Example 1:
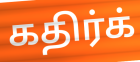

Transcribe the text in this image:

கதிர்க்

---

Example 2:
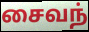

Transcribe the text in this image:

சைவந்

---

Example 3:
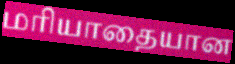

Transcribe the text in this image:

மரியாதையான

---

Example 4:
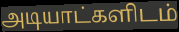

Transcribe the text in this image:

அடியாட்களிடம்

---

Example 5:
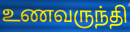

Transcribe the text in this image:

உணவருந்தி